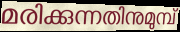
മരിക്കുന്നതിനുമുമ്പ്